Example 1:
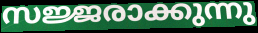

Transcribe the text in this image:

സജ്ജരാക്കുന്നു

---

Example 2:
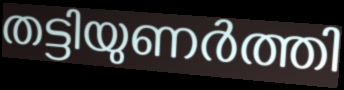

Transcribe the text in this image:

തട്ടിയുണർത്തി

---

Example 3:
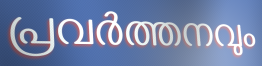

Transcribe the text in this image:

പ്രവർത്തനവും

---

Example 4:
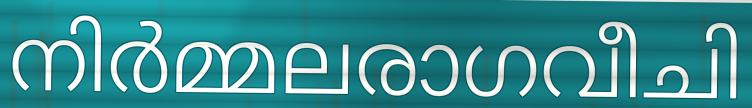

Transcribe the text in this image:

നിർമ്മലരാഗവീചി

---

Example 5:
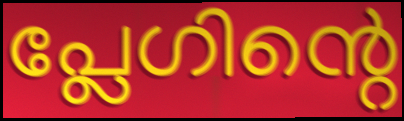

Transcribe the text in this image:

പ്ലേഗിന്റെ